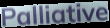
Palliative